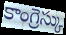
కాంగ్రెస్కు